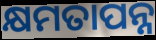
କ୍ଷମତାପନ୍ନ